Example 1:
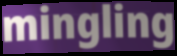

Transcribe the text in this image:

mingling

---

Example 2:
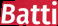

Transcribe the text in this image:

Batti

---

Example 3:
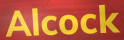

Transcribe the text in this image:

Alcock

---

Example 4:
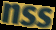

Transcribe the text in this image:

nss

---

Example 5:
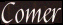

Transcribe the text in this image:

Comer